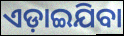
ଏଡ଼ାଇଯିବା